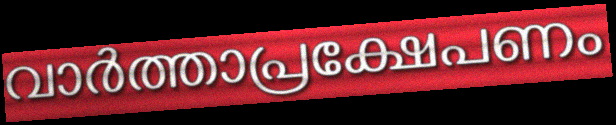
വാർത്താപ്രക്ഷേപണം